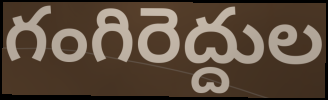
గంగిరెద్దుల